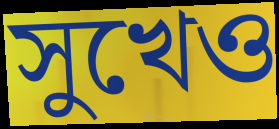
সুখেও